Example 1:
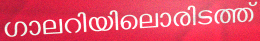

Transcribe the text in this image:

ഗാലറിയിലൊരിടത്ത്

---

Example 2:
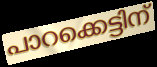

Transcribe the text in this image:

പാറക്കെട്ടിന്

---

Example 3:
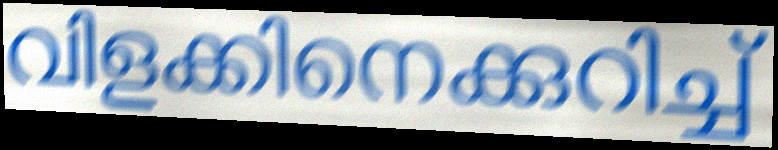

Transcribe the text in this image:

വിളക്കിനെക്കുറിച്ച്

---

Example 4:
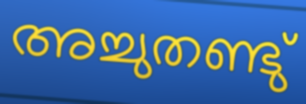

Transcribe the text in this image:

അച്ചുതണ്ടു്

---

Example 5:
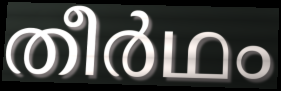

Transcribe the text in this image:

തീർഥം